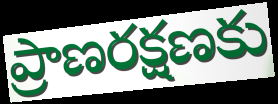
ప్రాణరక్షణకు